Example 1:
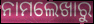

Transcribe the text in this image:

ନାମଲେଖାରୁ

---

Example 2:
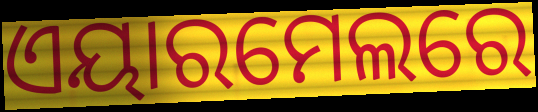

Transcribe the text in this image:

ଏୟାରମେଲରେ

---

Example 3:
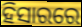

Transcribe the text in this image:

ହିସାରରେ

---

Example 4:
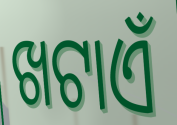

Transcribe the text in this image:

ଖଟାଏଁ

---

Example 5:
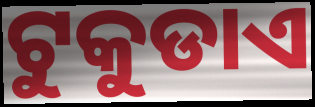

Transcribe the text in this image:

ଟୁକୁଡାଏ